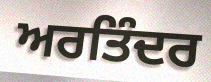
ਅਰਤਿੰਦਰ